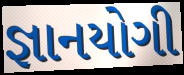
જ્ઞાનયોગી